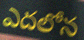
ఎదలోన